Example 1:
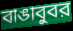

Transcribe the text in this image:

বাঙাবুবর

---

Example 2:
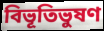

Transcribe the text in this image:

বিভূতিভুষণ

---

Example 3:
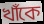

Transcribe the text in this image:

খাঁকে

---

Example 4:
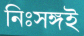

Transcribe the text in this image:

নিঃসঙ্গই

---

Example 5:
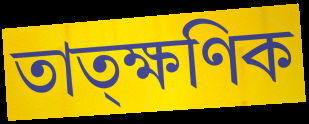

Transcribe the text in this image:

তাত্ক্ষণিক